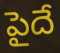
పైదే